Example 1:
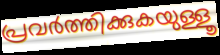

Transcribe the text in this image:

പ്രവർത്തിക്കുകയുള്ളൂ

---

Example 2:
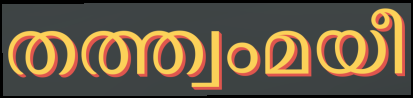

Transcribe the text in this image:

തത്ത്വംമയീ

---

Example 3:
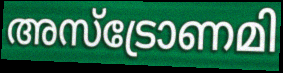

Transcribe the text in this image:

അസ്ട്രോണമി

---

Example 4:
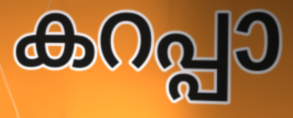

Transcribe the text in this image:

കറപ്പാ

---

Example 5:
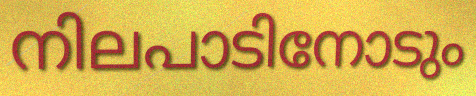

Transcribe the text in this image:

നിലപാടിനോടും